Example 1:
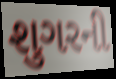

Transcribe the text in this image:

શુગરની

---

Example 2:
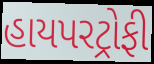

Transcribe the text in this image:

હાયપરટ્રોફી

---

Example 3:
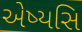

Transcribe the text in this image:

એષ્યસિ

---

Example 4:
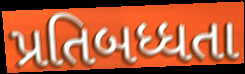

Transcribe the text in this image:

પ્રતિબધ્ધતા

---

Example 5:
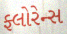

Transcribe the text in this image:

ફ્લોરેન્સ